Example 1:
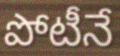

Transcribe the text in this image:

పోటీనే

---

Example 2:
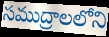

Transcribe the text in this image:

సముద్రాలలోని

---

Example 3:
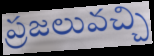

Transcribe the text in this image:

ప్రజలువచ్చి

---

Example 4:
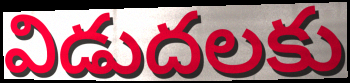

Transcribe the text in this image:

విడుదలకు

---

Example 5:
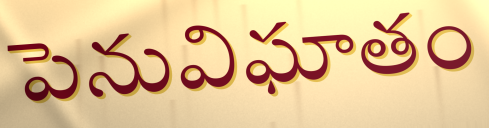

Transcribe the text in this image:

పెనువిఘాతం